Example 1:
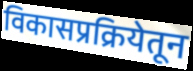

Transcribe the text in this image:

विकासप्रक्रियेतून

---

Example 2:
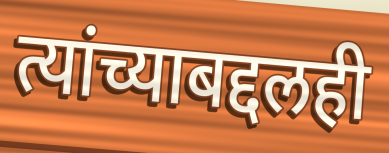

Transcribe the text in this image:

त्यांच्याबद्दलही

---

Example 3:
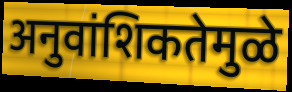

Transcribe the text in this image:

अनुवांशिकतेमुळे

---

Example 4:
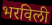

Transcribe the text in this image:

भरविली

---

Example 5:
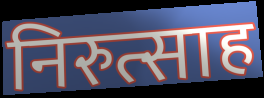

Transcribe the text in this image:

निरुत्साह